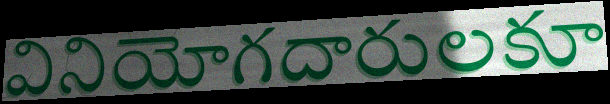
వినియోగదారులకూ